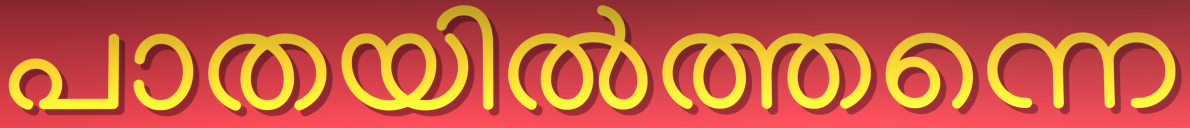
പാതയിൽത്തന്നെ